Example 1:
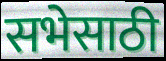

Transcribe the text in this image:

सभेसाठी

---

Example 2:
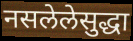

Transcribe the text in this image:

नसलेलेसुद्धा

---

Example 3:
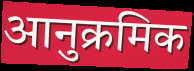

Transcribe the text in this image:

आनुक्रमिक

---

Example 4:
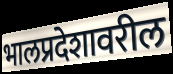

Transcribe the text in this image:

भालप्रदेशावरील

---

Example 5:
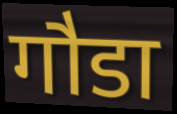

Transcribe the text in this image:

गौडा